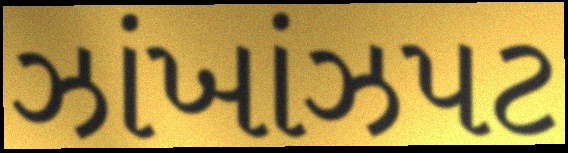
ઝાંખાંઝપટ